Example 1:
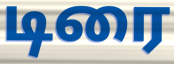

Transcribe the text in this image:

டிரை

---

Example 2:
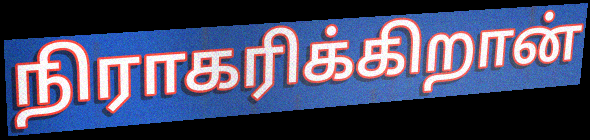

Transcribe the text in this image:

நிராகரிக்கிறான்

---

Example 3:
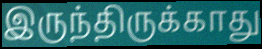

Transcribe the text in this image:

இருந்திருக்காது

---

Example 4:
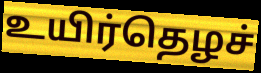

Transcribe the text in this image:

உயிர்தெழச்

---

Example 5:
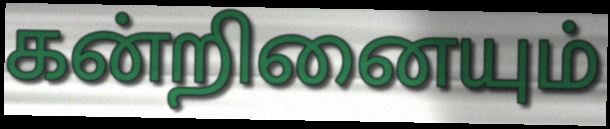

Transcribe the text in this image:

கன்றினையும்